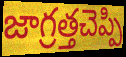
జాగ్రత్తచెప్పి